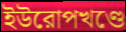
ইউরোপখণ্ডে